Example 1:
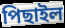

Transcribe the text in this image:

পিছাইল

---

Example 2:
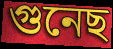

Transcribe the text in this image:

গুনেছ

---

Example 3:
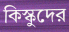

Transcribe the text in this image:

কিস্কুদের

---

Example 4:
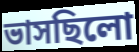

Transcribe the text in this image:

ভাসছিলো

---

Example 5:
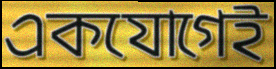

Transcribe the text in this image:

একযোগেই